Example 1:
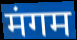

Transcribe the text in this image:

मंगम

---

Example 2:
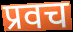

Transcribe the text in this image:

प्रवच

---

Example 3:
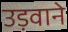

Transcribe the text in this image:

उड़वाने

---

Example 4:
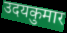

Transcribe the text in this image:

उदयकुमार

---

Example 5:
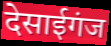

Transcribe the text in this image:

देसाईगंज